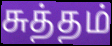
சுத்தம்